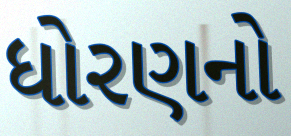
ધોરણનો